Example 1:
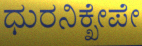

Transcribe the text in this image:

ಧುರನಿಕ್ಖೇಪೇ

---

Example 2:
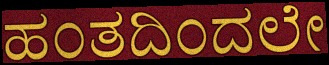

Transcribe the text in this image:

ಹಂತದಿಂದಲೇ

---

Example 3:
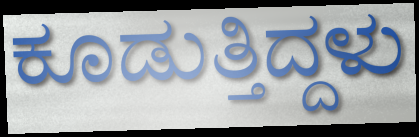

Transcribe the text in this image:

ಕೂಡುತ್ತಿದ್ದಳು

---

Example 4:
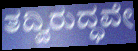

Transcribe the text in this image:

ತದ್ವಿರುದ್ಧವೇ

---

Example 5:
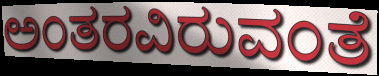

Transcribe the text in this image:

ಅಂತರವಿರುವಂತೆ